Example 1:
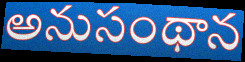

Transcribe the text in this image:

అనుసంథాన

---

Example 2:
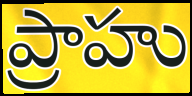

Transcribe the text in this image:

ప్రాహు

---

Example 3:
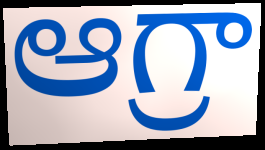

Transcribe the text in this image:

ఆగ్రా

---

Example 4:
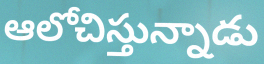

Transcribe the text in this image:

ఆలోచిస్తున్నాడు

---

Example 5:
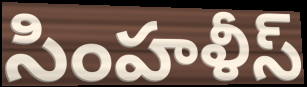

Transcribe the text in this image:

సింహళీస్